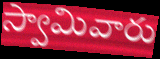
స్వామివారు